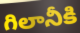
గిలానీకి